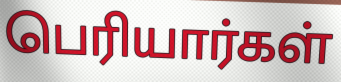
பெரியார்கள்